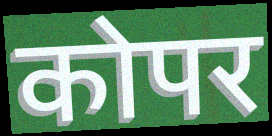
कोपर